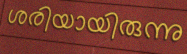
ശരിയായിരുന്നു